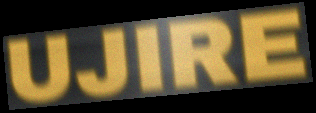
UJIRE